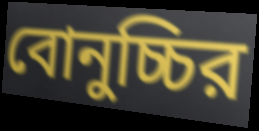
বোনুচ্চির